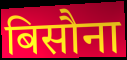
बिसौना